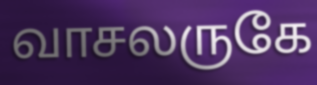
வாசலருகே